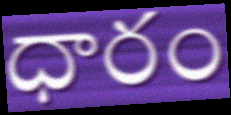
ధారం